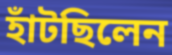
হাঁটছিলেন